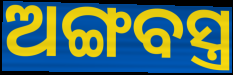
ଅଙ୍ଗବସ୍ତ୍ର